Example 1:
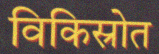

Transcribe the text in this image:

विकिस्रोत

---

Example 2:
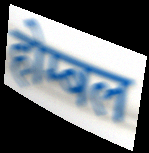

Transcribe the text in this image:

होम्बल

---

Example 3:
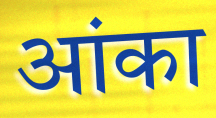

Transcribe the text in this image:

आंका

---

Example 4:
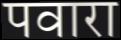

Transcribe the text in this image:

पवारा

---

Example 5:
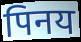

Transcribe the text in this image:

पिनय